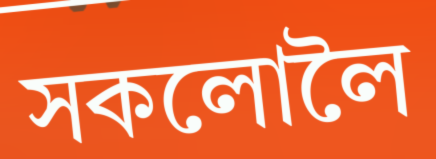
সকলোলৈ